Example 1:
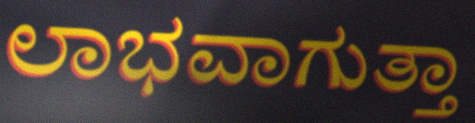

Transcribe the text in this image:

ಲಾಭವಾಗುತ್ತಾ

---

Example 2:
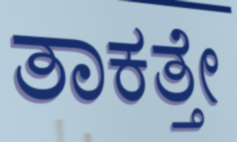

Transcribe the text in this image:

ತಾಕತ್ತೇ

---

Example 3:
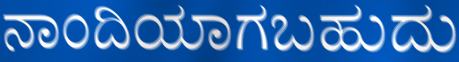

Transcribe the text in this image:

ನಾಂದಿಯಾಗಬಹುದು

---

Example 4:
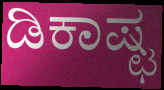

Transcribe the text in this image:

ಡಿಕಾಷ್ಟ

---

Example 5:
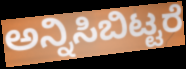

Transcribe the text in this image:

ಅನ್ನಿಸಿಬಿಟ್ಟರೆ